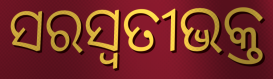
ସରସ୍ୱତୀଭକ୍ତ